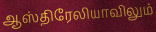
ஆஸ்திரேலியாவிலும்